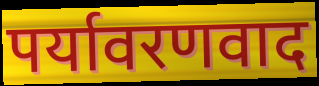
पर्यावरणवाद